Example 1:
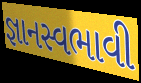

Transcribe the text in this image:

જ્ઞાનસ્વભાવી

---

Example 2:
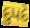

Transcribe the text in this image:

દુપદે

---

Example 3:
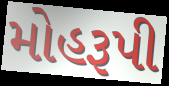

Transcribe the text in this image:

મોહરૂપી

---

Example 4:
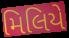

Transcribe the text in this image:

મિલિયે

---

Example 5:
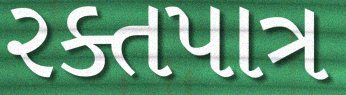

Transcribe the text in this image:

રક્તપાત્ર